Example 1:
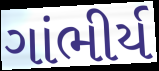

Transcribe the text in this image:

ગાંભીર્ય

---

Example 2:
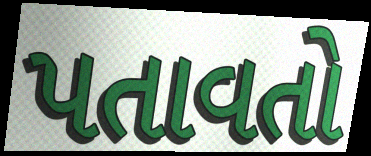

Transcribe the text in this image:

પતાવતો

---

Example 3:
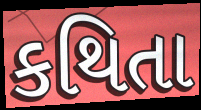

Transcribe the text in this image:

કથિતા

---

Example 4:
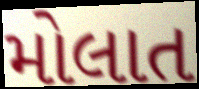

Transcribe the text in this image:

મોલાત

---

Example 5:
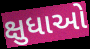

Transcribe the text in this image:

ક્ષુધાઓ